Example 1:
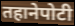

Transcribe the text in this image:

तहानेपोटी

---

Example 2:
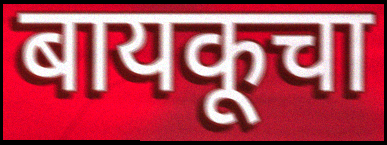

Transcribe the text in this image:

बायकूचा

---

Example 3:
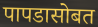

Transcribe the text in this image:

पापडासोबत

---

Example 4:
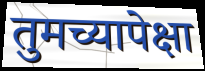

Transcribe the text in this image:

तुमच्यापेक्षा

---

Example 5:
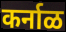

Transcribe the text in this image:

कर्नाळ